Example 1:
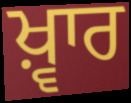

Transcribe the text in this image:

ਖ਼੍ਵਾਰ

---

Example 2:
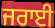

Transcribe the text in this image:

ਜਰਾਈ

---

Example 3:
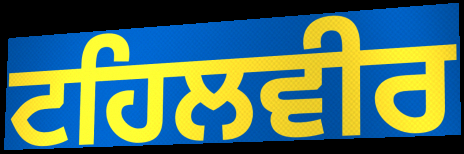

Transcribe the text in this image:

ਟਹਿਲਵੀਰ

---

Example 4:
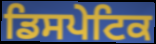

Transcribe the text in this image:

ਡਿਸਪੇਟਿਕ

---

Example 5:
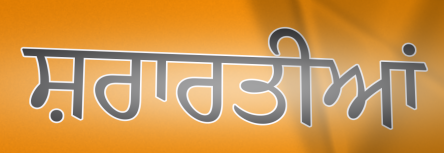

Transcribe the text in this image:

ਸ਼ਰਾਰਤੀਆਂ